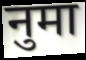
नुमा